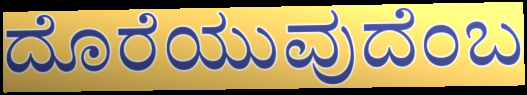
ದೊರೆಯುವುದೆಂಬ